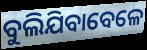
ବୁଲିଯିବାବେଳେ